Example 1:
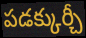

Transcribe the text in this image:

పడక్కుర్చీ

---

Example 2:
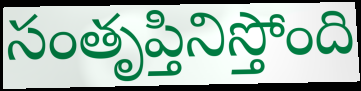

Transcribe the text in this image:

సంతృప్తినిస్తోంది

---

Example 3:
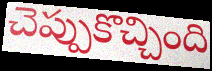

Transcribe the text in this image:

చెప్పుకొచ్చింది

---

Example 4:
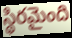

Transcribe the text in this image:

స్థిరమైంది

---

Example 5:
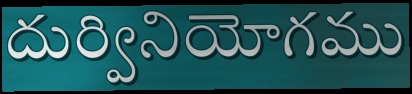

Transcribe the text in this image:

దుర్వినియోగము